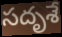
సదృశే